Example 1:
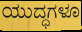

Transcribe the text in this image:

ಯುದ್ಧಗಳೂ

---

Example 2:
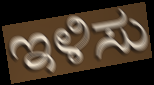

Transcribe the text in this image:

ಇಳಿಸು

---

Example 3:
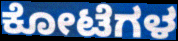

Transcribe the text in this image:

ಕೋಟೆಗಳ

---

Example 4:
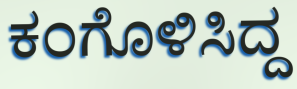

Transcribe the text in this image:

ಕಂಗೊಳಿಸಿದ್ದ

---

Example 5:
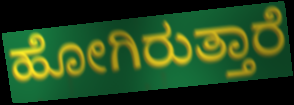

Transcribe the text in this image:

ಹೋಗಿರುತ್ತಾರೆ